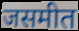
जसमीत